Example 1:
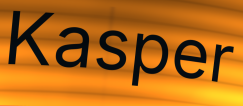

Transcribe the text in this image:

Kasper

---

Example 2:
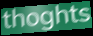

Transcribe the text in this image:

thoghts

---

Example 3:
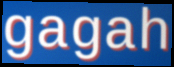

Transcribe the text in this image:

gagah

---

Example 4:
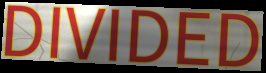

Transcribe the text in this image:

DIVIDED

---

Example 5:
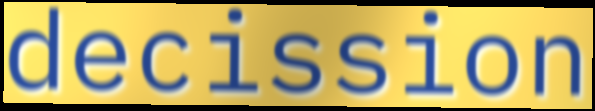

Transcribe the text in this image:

decission